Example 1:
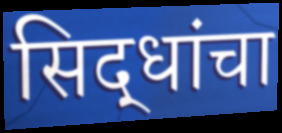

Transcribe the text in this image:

सिद्धांचा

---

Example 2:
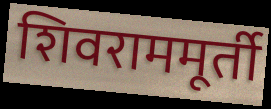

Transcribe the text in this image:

शिवराममूर्ती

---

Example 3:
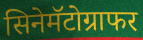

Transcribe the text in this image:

सिनेमॅटोग्राफर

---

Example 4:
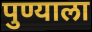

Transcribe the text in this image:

पुण्याला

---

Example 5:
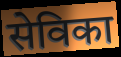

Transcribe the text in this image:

सेविका